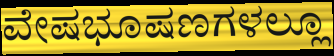
ವೇಷಭೂಷಣಗಳಲ್ಲೂ